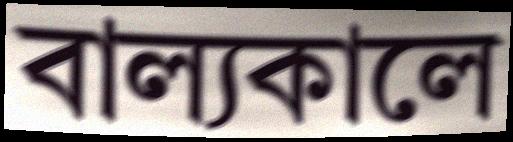
বাল্যকালে